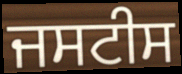
ਜਸਟੀਸ